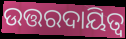
ଉତ୍ତରଦାୟିତ୍ଵ